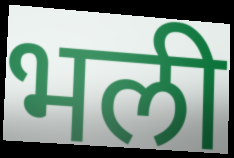
भली